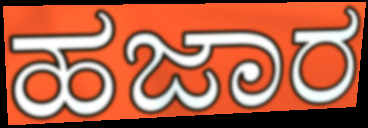
ಹಜಾರ